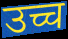
उच्‍च